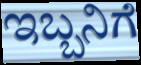
ಇಬ್ಬನಿಗೆ